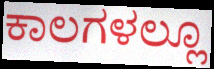
ಕಾಲಗಳಲ್ಲೂ